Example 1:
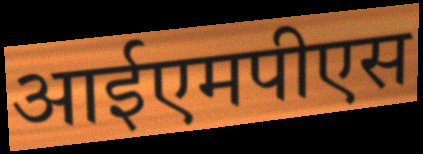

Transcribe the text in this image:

आईएमपीएस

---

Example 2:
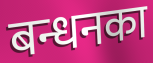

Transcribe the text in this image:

बन्धनका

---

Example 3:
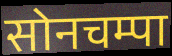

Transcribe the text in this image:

सोनचम्पा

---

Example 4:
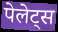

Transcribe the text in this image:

पेलेट्स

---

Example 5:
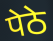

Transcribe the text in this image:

पेठे